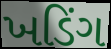
ખડિંગ